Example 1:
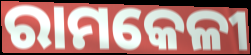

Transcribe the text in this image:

ରାମକେଳୀ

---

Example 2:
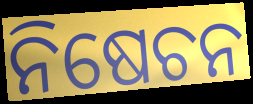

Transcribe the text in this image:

ନିଷେଚନ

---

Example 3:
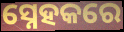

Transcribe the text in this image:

ସ୍ନେହକରେ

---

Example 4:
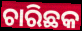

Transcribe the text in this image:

ଚାରିଛକ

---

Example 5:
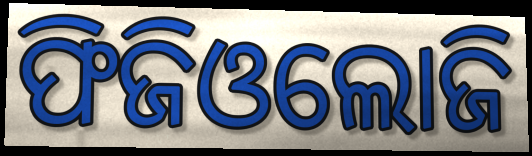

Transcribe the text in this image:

ଫିଜିଓଲୋଜି